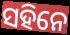
ସହିନେ